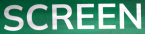
SCREEN